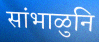
सांभाळुनि